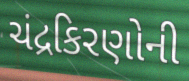
ચંદ્રકિરણોની